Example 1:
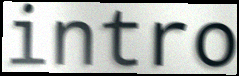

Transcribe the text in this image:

intro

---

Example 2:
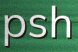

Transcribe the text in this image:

psh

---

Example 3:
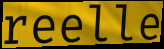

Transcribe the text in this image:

reelle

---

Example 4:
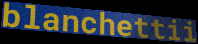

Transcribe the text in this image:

blanchettii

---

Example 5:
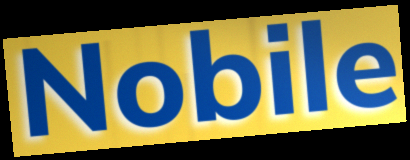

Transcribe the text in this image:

Nobile